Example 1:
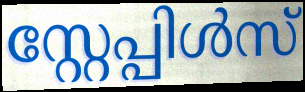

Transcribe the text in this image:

സ്റ്റേപ്പിൾസ്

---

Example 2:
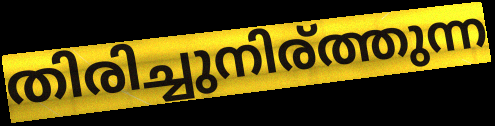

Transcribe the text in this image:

തിരിച്ചുനിര്ത്തുന്ന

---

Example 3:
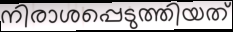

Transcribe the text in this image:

നിരാശപ്പെടുത്തിയത്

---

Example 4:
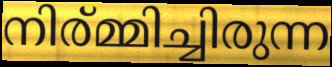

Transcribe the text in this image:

നിര്മ്മിച്ചിരുന്ന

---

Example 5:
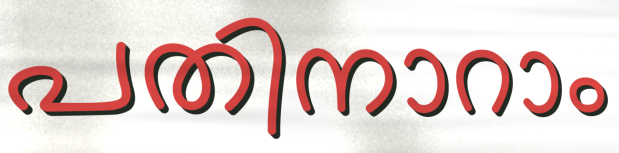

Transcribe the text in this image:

പതിനാറാം